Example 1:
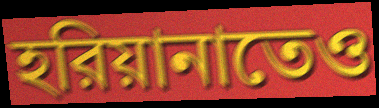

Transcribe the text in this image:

হরিয়ানাতেও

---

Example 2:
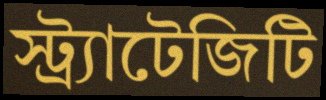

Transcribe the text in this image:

স্ট্র্যাটেজিটি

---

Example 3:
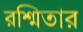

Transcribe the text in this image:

রশ্মিতার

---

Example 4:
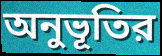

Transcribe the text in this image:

অনুভূতির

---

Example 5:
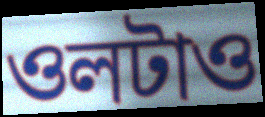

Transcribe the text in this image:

ওলটাও